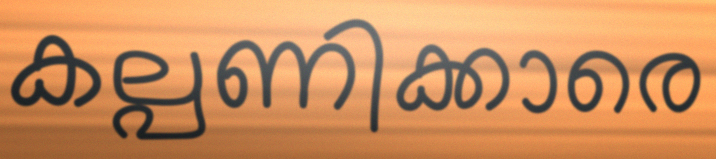
കല്പണിക്കാരെ